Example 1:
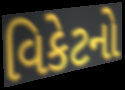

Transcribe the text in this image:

વિકેટનો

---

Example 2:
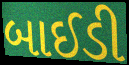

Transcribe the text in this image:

બાઈડી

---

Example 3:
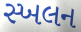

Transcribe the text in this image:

સ્ખલન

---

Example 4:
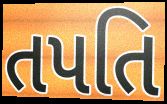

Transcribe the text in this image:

તપતિ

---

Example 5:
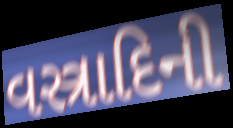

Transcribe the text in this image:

વસ્ત્રાદિની